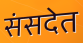
संसदेत